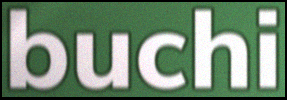
buchi